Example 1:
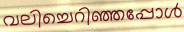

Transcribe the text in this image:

വലിച്ചെറിഞ്ഞപ്പോൾ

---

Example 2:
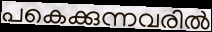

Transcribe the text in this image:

പകെക്കുന്നവരിൽ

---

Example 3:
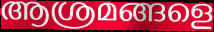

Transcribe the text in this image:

ആശ്രമങ്ങളെ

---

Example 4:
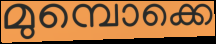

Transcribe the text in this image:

മുമ്പൊക്കെ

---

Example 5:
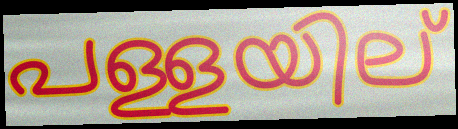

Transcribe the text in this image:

പള്ളയില്